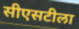
सीएसटीला